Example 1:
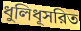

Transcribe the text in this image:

ধুলিধূসরিত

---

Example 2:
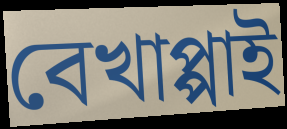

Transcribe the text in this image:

বেখাপ্পাই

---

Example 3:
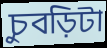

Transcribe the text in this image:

চুবড়িটা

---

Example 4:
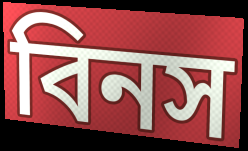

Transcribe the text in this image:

বিনস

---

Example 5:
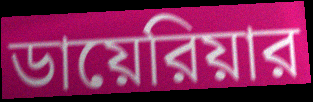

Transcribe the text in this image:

ডায়েরিয়ার